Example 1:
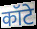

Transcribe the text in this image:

कॉटे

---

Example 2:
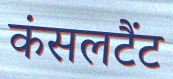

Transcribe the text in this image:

कंसलटैंट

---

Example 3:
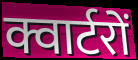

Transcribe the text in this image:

क्वार्टरों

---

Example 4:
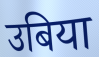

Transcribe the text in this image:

उबिया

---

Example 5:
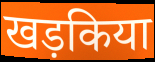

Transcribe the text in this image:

खड़किया